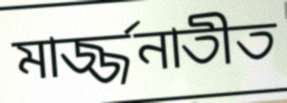
মার্জ্জনাতীত